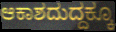
ಆಕಾಶದುದ್ದಕ್ಕೂ